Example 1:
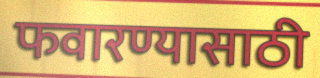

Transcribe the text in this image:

फवारण्यासाठी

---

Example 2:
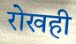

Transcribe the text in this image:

रोखही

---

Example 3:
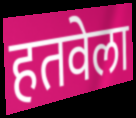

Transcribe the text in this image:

हतवेला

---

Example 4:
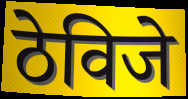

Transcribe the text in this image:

ठेविजे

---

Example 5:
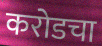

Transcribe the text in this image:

करोडचा